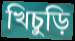
খিচুড়ি